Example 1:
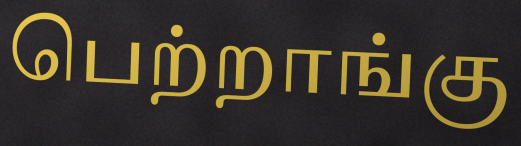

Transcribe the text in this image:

பெற்றாங்கு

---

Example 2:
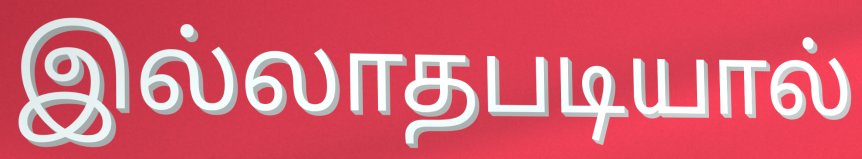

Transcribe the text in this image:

இல்லாதபடியால்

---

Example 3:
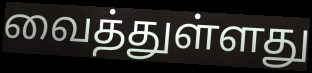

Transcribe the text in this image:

வைத்துள்ளது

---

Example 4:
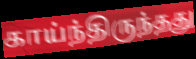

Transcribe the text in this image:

காய்ந்திருந்தது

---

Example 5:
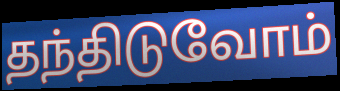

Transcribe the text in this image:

தந்திடுவோம்